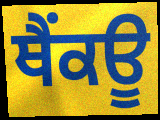
ਥੈਂਕਊ